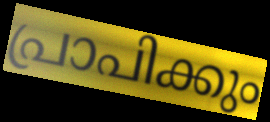
പ്രാപിക്കും